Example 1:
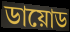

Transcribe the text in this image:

ডায়োড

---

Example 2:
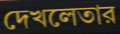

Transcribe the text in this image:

দেখলেতার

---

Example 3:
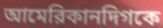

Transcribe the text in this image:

আমেরিকানদিগকে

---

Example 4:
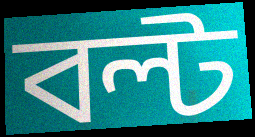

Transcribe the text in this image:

বল্ট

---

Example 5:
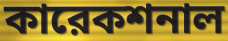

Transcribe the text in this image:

কারেকশনাল